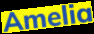
Amelia